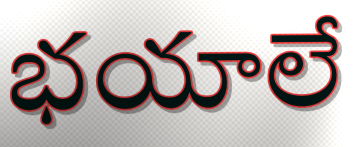
భయాలే